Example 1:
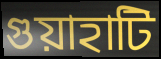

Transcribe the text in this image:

গুয়াহাটি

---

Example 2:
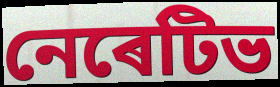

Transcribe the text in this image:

নেৰেটিভ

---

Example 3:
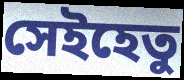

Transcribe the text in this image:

সেইহেতু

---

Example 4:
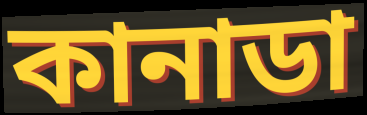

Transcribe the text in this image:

কানাডা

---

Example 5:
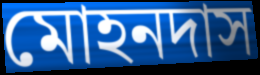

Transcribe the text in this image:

মোহনদাস